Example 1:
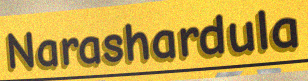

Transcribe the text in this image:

Narashardula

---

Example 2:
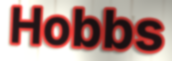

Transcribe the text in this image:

Hobbs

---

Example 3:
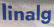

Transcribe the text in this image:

linalg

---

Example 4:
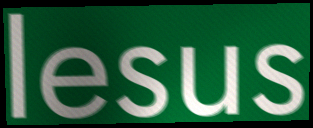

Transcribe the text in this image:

Iesus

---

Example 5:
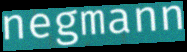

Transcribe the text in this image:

negmann